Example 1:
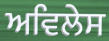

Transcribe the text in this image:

ਅਵਿਲੇਸ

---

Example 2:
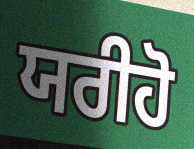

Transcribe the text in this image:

ਯਰੀਹੋ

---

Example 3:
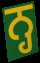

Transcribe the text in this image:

ਨ੍ਹ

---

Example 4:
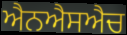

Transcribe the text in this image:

ਐਨਐਸਐਚ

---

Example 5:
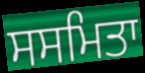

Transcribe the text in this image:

ਸਸਮਿਤਾ